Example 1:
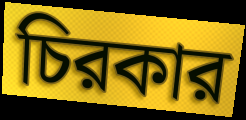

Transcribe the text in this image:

চিরকার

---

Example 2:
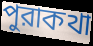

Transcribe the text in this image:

পুরাকথা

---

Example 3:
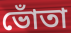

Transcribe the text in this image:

ভোঁতা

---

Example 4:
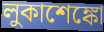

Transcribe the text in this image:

লুকাশেঙ্কো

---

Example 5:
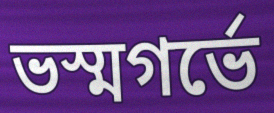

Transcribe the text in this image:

ভস্মগর্ভে